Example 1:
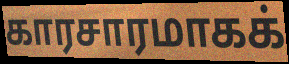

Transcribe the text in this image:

காரசாரமாகக்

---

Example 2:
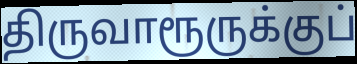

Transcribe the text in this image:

திருவாரூருக்குப்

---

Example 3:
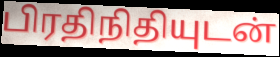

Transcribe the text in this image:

பிரதிநிதியுடன்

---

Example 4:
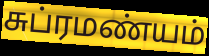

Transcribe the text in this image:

சுப்ரமண்யம்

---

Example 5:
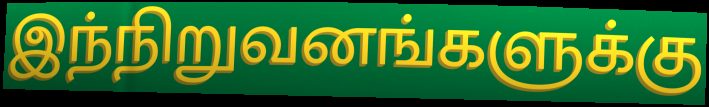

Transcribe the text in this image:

இந்நிறுவனங்களுக்கு